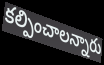
కల్పించాలన్నారు